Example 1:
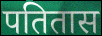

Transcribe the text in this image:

पतितास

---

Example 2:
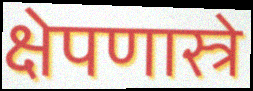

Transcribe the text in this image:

क्षेपणास्त्रे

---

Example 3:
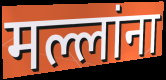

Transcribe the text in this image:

मल्लांना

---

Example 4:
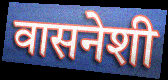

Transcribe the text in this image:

वासनेशी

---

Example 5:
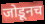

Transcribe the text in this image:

जोडूनच